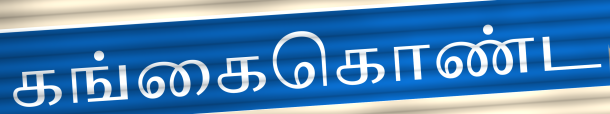
கங்கைகொண்ட